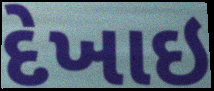
દેખાઇ